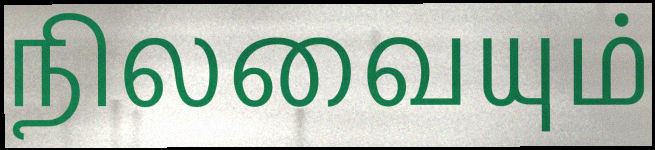
நிலவையும்